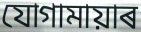
যোগামায়াৰ